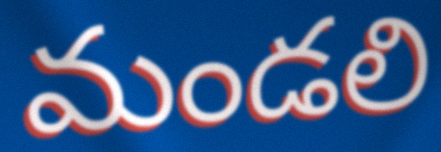
మండలి